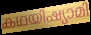
കഥയിഷ്യാമി